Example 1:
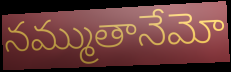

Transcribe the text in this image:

నమ్ముతానేమో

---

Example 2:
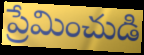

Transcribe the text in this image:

ప్రేమించుడి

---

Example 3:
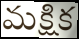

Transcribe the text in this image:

మక్షిక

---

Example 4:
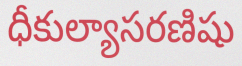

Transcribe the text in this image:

ధీకుల్యాసరణిషు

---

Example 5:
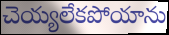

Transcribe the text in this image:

చెయ్యలేకపోయాను